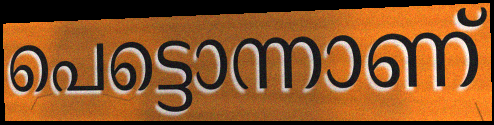
പെട്ടൊന്നാണ്